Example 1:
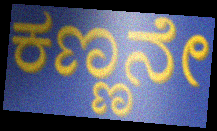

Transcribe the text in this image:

ಕಣ್ಣನೇ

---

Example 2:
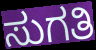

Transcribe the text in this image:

ಸುಗತಿ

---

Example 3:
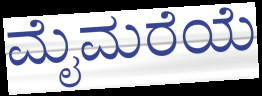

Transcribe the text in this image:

ಮೈಮರೆಯೆ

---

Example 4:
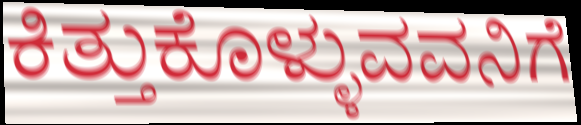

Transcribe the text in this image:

ಕಿತ್ತುಕೊಳ್ಳುವವನಿಗೆ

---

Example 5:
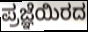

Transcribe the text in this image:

ಪ್ರಜ್ಞೆಯಿರದ